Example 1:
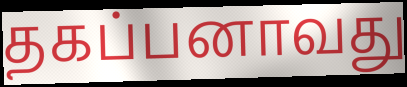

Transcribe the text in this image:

தகப்பனாவது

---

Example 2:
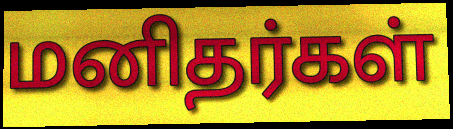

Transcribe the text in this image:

மனிதர்கள்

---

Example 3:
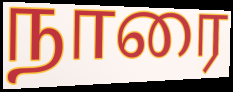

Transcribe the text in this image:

நாரை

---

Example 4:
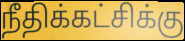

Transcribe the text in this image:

நீதிக்கட்சிக்கு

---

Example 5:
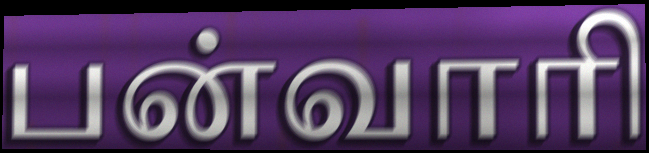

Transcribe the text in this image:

பன்வாரி